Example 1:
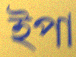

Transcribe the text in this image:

ইপা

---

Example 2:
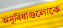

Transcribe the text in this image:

অসুবিধাগুলোকে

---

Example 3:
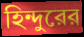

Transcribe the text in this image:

হিন্দুরের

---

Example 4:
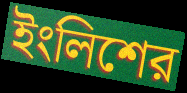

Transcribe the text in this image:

ইংলিশের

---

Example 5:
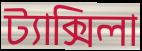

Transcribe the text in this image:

ট্যাক্সিলা